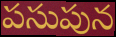
పసుపున